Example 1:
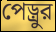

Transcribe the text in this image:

পেড়্রুর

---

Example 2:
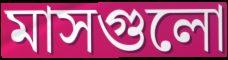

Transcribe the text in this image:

মাসগুলো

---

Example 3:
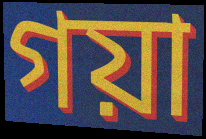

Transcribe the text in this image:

গয়া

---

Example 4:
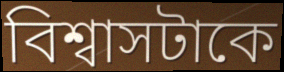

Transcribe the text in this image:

বিশ্বাসটাকে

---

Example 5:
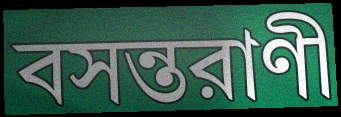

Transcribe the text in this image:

বসন্তরাণী